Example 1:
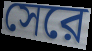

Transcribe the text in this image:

সেরে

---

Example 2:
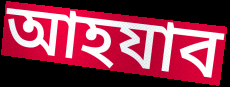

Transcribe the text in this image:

আহযাব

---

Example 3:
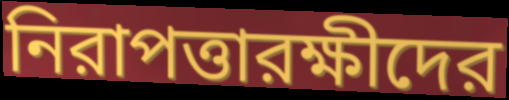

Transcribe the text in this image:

নিরাপত্তারক্ষীদের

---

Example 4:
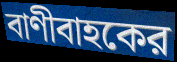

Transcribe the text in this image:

বাণীবাহকের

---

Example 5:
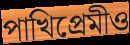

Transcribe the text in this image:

পাখিপ্রেমীও